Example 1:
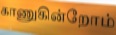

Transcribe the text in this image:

காணுகின்றோம்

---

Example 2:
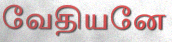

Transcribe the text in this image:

வேதியனே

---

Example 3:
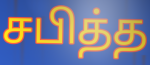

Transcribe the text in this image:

சபித்த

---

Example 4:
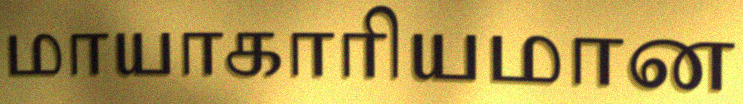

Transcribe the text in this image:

மாயாகாரியமான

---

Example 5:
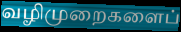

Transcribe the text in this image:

வழிமுறைகளைப்